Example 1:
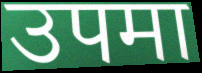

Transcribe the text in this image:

उपमा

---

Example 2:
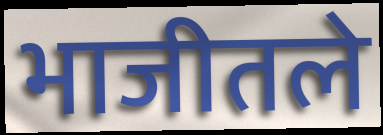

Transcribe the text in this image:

भाजीतले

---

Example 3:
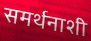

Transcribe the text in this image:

समर्थनाशी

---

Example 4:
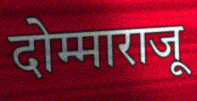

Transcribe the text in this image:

दोम्माराजू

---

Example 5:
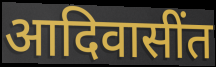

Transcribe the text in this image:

आदिवासींत